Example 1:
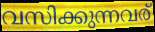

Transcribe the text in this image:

വസിക്കുന്നവര്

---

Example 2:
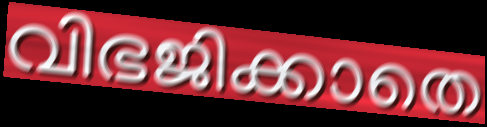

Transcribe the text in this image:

വിഭജിക്കാതെ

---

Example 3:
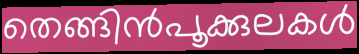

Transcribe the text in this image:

തെങ്ങിൻപൂക്കുലകൾ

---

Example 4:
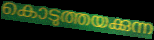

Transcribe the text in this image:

കൊടുത്തയക്കുന്ന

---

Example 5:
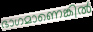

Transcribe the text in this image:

ഭാഗമാണെങ്കിൽ